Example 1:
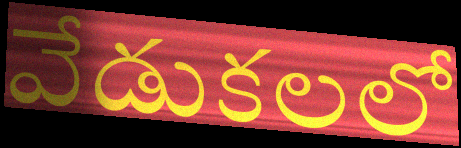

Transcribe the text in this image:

వేడుకలలో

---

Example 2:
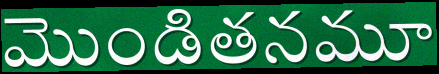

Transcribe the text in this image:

మొండితనమూ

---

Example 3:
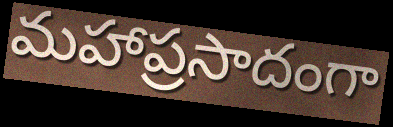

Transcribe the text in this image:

మహాప్రసాదంగా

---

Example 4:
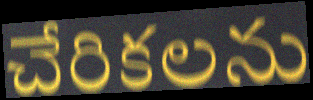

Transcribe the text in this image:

చేరికలను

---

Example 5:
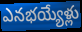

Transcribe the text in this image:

ఎనభయ్యేళ్లు